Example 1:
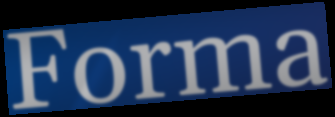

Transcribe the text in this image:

Forma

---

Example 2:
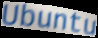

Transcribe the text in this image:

Ubuntu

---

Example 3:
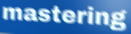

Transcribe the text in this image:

mastering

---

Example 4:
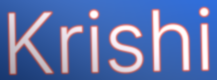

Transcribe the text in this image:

Krishi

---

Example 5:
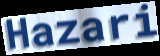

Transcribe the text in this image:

Hazari